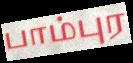
பாம்புர